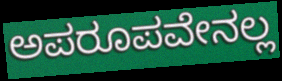
ಅಪರೂಪವೇನಲ್ಲ